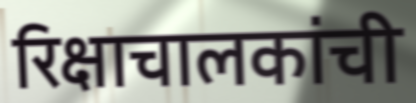
रिक्षाचालकांची